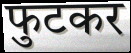
फुटकर